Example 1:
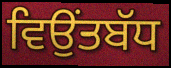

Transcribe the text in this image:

ਵਿਉਂਤਬੱਧ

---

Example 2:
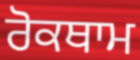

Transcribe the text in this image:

ਰੋਕਥਾਮ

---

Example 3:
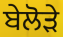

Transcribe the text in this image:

ਬੇਲੋੜੇ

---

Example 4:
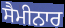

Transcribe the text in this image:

ਸੈਮੀਨਾਰ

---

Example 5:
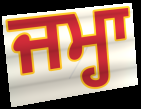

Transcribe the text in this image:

ਜਮ੍ਹਾ